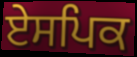
ਏਸਪਿਕ